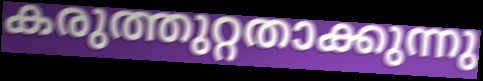
കരുത്തുറ്റതാക്കുന്നു